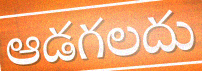
ఆడగలదు